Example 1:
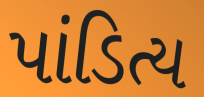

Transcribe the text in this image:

પાંડિત્ય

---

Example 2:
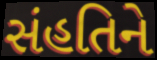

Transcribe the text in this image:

સંહતિને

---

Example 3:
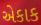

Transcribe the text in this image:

એકાક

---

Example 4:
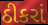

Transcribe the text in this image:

ઠીકરાં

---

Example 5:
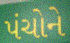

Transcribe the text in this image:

પંચોને